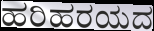
ಹರಿಹರಯದ